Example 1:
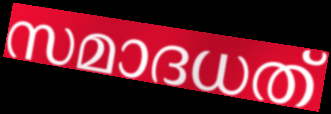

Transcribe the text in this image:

സമാദധത്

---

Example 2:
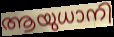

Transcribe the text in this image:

ആയുധാനി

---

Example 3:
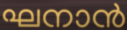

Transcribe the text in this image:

ഘനാൻ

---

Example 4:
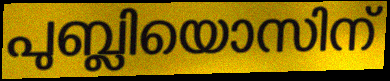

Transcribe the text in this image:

പുബ്ലിയൊസിന്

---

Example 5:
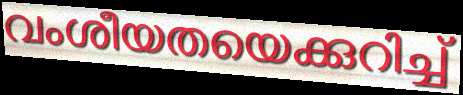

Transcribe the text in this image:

വംശീയതയെക്കുറിച്ച്